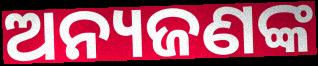
ଅନ୍ୟଜଣଙ୍କ